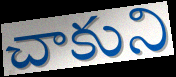
చాకుని